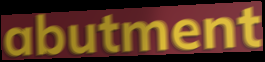
abutment